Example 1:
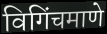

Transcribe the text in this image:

विगिंचमाणे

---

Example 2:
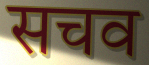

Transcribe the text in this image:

सचव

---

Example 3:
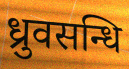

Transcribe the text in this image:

ध्रुवसन्धि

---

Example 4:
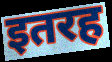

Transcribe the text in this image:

इतरह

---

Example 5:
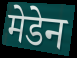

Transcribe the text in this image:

मेडेन